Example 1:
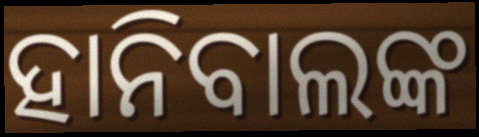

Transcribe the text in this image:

ହାନିବାଲଙ୍କ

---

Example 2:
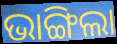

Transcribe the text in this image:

ଭାଙ୍ଗିଲା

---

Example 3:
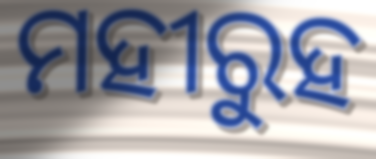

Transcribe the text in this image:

ମହୀରୁହ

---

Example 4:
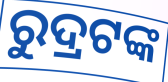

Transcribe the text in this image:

ରୁଦ୍ରଟଙ୍କ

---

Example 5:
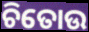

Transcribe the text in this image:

ଚିତୋଉ